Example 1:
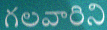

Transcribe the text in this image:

గలవారిని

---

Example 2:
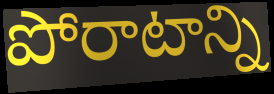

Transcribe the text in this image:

పోరాటాన్ని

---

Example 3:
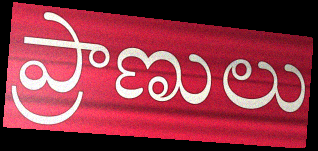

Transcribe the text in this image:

ప్రాణులు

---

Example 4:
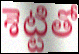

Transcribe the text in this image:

శెట్టితో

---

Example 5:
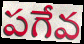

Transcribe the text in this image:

పగేవ